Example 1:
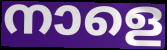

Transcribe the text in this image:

നാളെ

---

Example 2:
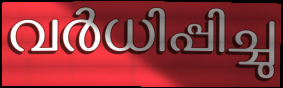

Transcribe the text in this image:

വർധിപ്പിച്ചു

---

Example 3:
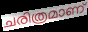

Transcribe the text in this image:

ചരിത്രമാണ്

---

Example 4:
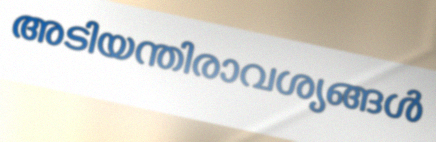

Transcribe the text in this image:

അടിയന്തിരാവശ്യങ്ങൾ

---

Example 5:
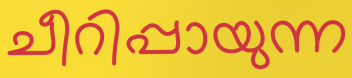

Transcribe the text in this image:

ചീറിപ്പായുന്ന